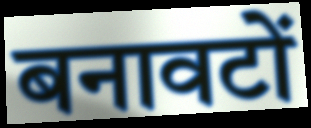
बनावटों